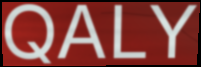
QALY